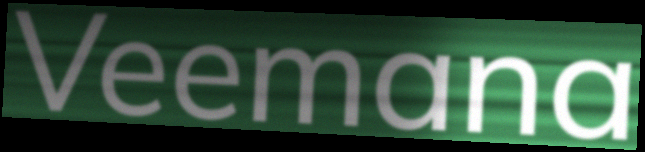
Veemana